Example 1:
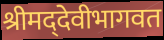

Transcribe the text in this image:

श्रीमद्‌देवीभागवत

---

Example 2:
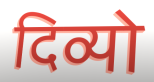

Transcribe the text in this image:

दिव्यो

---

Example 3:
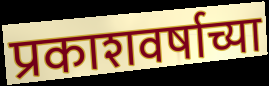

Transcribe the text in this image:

प्रकाशवर्षाच्या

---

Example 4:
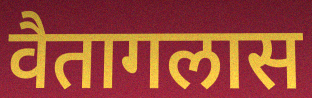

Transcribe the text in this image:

वैतागलास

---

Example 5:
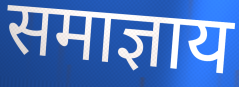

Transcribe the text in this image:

समाज्ञाय